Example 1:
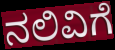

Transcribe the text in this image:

ನಲಿವಿಗೆ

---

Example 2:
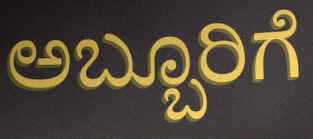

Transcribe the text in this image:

ಅಬ್ಬೂರಿಗೆ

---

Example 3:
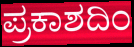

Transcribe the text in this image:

ಪ್ರಕಾಶದಿಂ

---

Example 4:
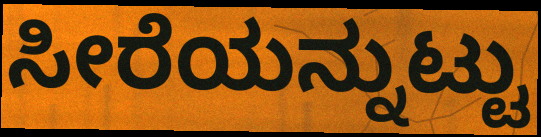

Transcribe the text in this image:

ಸೀರೆಯನ್ನುಟ್ಟು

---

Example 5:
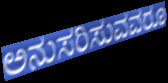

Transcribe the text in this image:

ಅನುಸರಿಸುವವರೂ